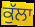
ਕੁੱਲਾ